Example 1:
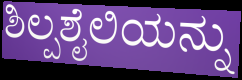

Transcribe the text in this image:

ಶಿಲ್ಪಶೈಲಿಯನ್ನು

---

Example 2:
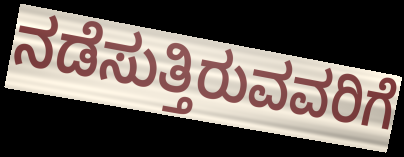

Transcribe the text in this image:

ನಡೆಸುತ್ತಿರುವವರಿಗೆ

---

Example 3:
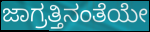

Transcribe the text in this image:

ಜಾಗ್ರತ್ತಿನಂತೆಯೇ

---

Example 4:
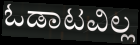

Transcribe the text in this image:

ಓಡಾಟವಿಲ್ಲ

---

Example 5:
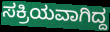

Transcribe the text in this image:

ಸಕ್ರಿಯವಾಗಿದ್ದ